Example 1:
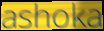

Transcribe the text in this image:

ashoka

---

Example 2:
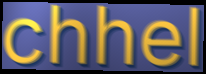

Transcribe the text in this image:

chhel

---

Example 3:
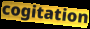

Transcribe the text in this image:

cogitation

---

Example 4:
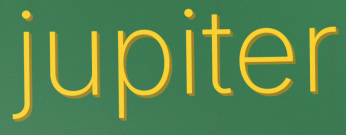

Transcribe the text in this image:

jupiter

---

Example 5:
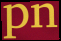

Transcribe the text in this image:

pn